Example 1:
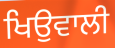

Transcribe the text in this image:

ਖਿਉਵਾਲੀ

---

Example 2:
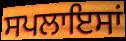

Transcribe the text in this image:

ਸਪਲਾਇਸਾਂ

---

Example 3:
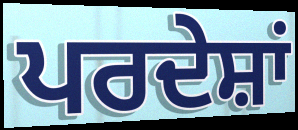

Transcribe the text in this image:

ਪਰਦੇਸ਼ਾਂ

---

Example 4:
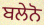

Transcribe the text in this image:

ਬਲੇਨੋ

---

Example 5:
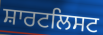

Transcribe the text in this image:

ਸ਼ਾਰਟਲਿਸਟ